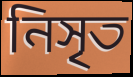
নিসৃত